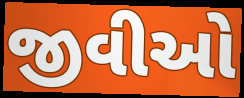
જીવીઓ